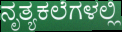
ನೃತ್ಯಕಲೆಗಳಲ್ಲಿ